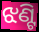
ଝଣ୍ଟି